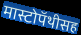
मास्टोपॅथीसह